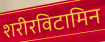
शरीरविटामिन